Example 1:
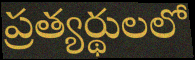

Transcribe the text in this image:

ప్రత్యర్థులలో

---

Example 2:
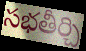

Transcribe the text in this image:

సభతీర్చి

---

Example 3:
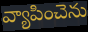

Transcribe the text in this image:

వ్యాపించెను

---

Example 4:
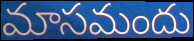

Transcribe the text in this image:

మాసమందు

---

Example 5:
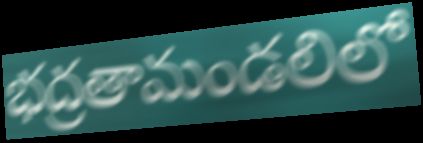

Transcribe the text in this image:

భద్రతామండలిలో